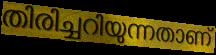
തിരിച്ചറിയുന്നതാണ്